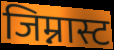
जिम्नास्ट